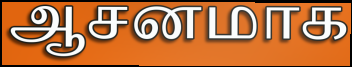
ஆசனமாக